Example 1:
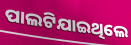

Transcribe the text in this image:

ପାଲଟିଯାଇଥିଲେ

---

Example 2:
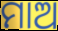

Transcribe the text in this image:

ମାଅ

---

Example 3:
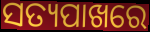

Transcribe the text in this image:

ସତ୍ୟପାଖରେ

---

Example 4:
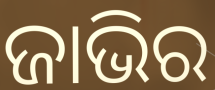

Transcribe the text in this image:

ଜାଭିର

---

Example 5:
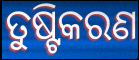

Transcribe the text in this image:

ତୁଷ୍ଟିକରଣ